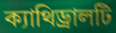
ক্যাথিড্রালটি